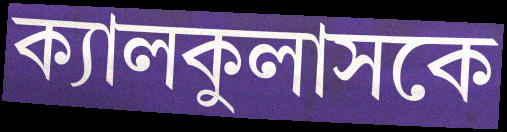
ক্যালকুলাসকে